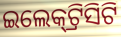
ଇଲେକ୍‌ଟ୍ରିସିଟି